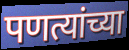
पणत्यांच्या